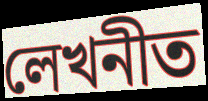
লেখনীত